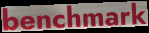
benchmark